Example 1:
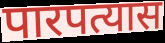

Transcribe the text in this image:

पारपत्यास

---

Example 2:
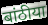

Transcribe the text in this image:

बांठीया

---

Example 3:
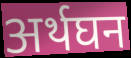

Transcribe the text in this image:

अर्थघन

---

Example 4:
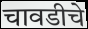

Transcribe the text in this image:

चावडीचे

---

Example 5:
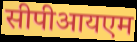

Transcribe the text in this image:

सीपीआयएम